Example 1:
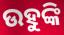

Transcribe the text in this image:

ଉହୁଙ୍କି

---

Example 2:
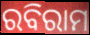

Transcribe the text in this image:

ରବିରାମ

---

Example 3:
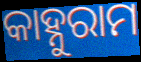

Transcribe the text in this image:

କାହ୍ନୁରାମ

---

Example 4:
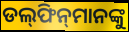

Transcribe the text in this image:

ଡଲ୍‍ଫିନ୍‍ମାନଙ୍କୁ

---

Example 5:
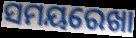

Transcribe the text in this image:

ସମୟରେଖା